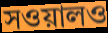
সওয়ালও